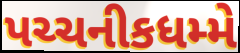
પચ્ચનીકધમ્મે